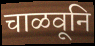
चाळवूनि